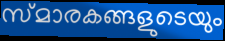
സ്മാരകങ്ങളുടെയും